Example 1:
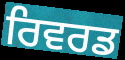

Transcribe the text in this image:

ਰਿਵਰਡ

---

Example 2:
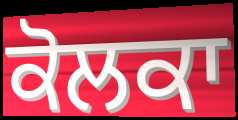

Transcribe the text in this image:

ਕੋਲਕਾ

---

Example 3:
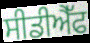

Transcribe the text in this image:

ਸੀਡੀਐੱਫ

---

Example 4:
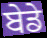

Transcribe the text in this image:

ਬੇਡੇ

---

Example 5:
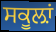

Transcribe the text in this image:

ਸਕੂਲ਼ਾਂ